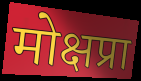
मोक्षप्रा